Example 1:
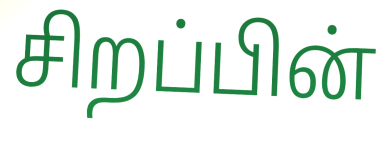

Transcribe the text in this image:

சிறப்பின்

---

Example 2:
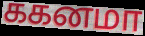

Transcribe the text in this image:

ககனமா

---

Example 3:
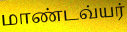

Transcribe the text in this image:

மாண்டவ்யர்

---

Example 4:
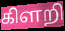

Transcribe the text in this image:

கிளறி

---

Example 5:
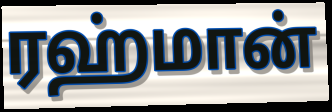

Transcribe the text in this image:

ரஹ்மான்